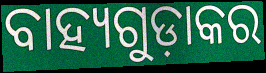
ବାହ୍ୟଗୁଡ଼ାକର